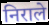
निराले